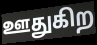
ஊதுகிற